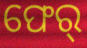
ଫେର୍